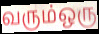
வரும்ஒரு